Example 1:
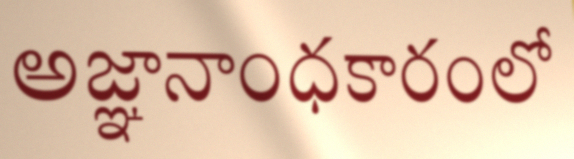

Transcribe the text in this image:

అజ్ఞానాంధకారంలో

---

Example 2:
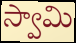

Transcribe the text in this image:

స్వామి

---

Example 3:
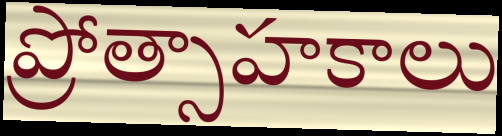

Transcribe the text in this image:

ప్రోత్సాహకాలు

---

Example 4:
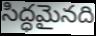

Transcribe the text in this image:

సిద్ధమైనది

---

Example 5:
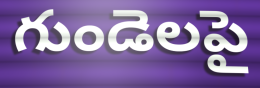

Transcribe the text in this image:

గుండెలపై